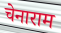
चेनाराम